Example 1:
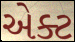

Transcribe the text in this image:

એક્ટ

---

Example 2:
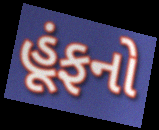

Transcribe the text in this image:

હૂંફનો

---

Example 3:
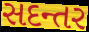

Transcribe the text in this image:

સદન્તર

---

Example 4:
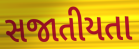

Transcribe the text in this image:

સજાતીયતા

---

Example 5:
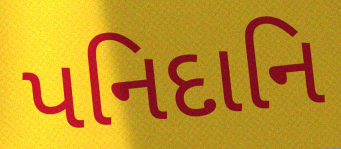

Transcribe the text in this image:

પનિદાનિ